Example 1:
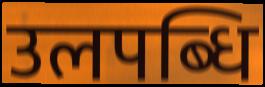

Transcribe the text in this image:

उलपब्धि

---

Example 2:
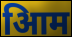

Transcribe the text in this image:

आिम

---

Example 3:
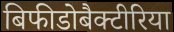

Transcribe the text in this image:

बिफीडोबैक्टीरिया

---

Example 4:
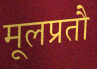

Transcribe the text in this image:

मूलप्रतौ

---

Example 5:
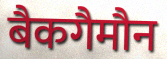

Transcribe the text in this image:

बैकगैमौन